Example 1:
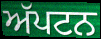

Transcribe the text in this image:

ਅੱਪਟਨ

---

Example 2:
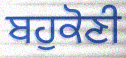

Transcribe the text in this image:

ਬਹੁਕੋਣੀ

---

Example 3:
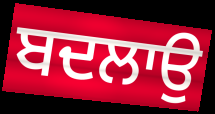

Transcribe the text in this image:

ਬਦਲਾਉ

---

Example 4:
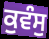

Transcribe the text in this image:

ਕੁਵੰਸੁ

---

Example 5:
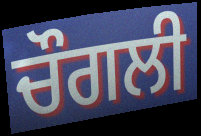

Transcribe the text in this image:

ਚੌਗਲੀ